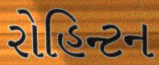
રોહિન્ટન